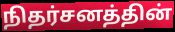
நிதர்சனத்தின்